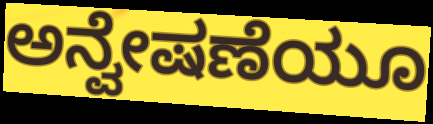
ಅನ್ವೇಷಣೆಯೂ